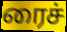
ரைச்